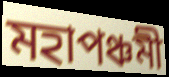
মহাপঞ্চমী